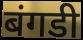
बंगडी